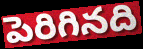
పెరిగినది